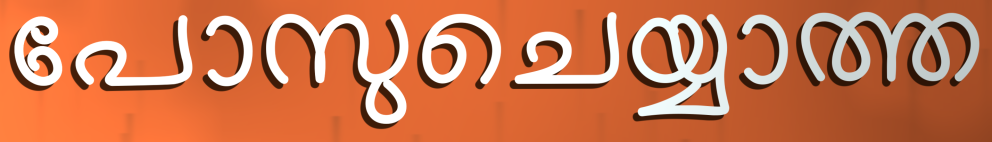
പോസുചെയ്യാത്ത